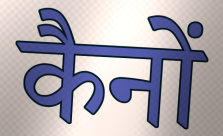
कैनों